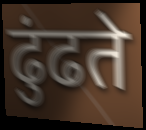
ढुंढते